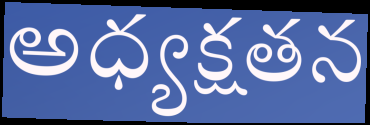
అధ్యక్షతన